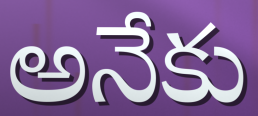
అనేకు